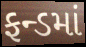
ફન્ડમાં